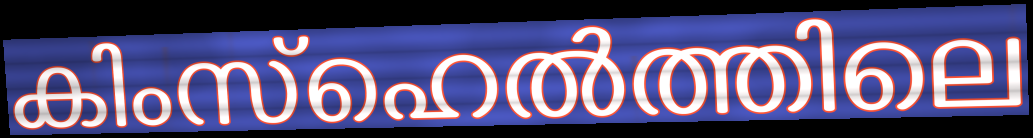
കിംസ്ഹെൽത്തിലെ